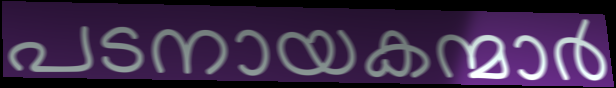
പടനായകന്മാർ